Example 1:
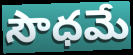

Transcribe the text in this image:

సౌధమే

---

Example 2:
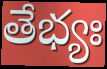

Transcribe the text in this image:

తేభ్యః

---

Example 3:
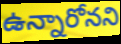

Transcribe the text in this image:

ఉన్నారోనని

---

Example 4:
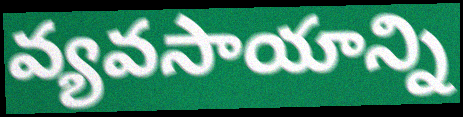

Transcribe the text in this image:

వ్యవసాయాన్ని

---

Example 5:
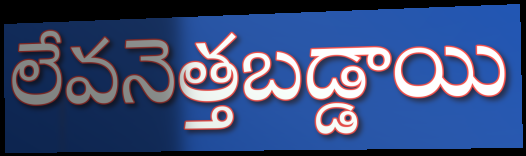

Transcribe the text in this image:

లేవనెత్తబడ్డాయి